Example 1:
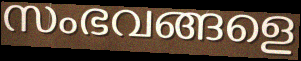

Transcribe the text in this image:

സംഭവങ്ങളെ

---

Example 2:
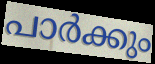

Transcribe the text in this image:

പാർക്കും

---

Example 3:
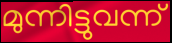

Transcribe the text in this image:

മുന്നിട്ടുവന്ന്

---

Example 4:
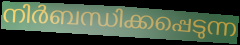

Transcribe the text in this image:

നിർബന്ധിക്കപ്പെടുന്ന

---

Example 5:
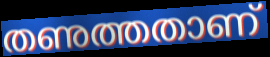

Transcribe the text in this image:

തണുത്തതാണ്